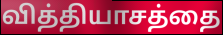
வித்தியாசத்தை